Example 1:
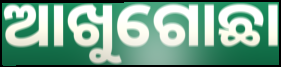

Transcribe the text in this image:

ଆଖୁଗୋଛା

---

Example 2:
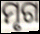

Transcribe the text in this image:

ମୃଗ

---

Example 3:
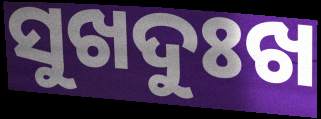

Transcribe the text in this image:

ସୁଖଦୁଃଖ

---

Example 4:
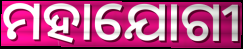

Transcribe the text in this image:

ମହାଯୋଗୀ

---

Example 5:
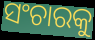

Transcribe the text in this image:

ସଂଚାରକୁ